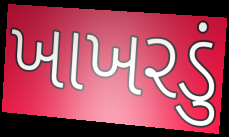
ખાખરડું